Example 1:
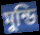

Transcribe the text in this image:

মুন্ডি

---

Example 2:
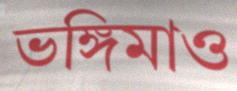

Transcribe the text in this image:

ভঙ্গিমাও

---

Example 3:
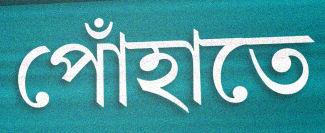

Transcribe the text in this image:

পোঁহাতে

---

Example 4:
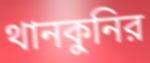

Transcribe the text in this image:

থানকুনির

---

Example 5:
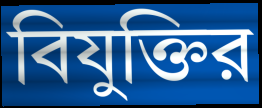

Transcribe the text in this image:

বিযুক্তির